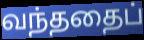
வந்ததைப்